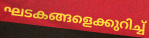
ഘടകങ്ങളെക്കുറിച്ച്